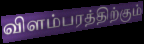
விளம்பரத்திற்கும்